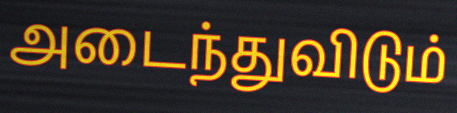
அடைந்துவிடும்